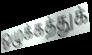
ஒழுக்கத்துக்